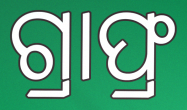
ଗ୍ରାଫ୍ର